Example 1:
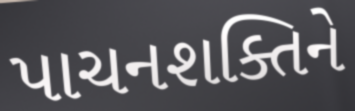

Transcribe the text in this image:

પાચનશક્તિને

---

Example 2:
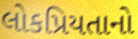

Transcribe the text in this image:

લોકપ્રિયતાનો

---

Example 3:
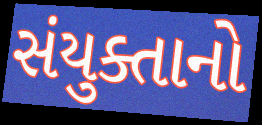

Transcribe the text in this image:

સંયુક્તાનો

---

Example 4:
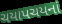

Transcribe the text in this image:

ચયાપચયનાં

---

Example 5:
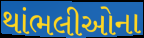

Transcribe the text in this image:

થાંભલીઓના